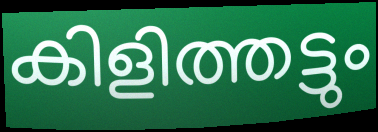
കിളിത്തട്ടും